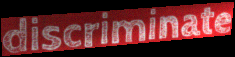
discriminate